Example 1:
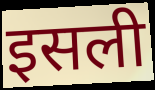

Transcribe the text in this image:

इसली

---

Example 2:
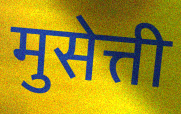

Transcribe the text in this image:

मुसेत्ती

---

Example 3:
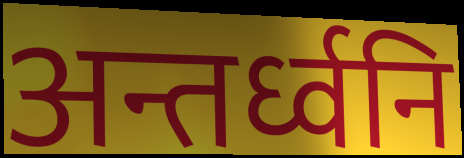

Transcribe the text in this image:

अन्तर्ध्वनि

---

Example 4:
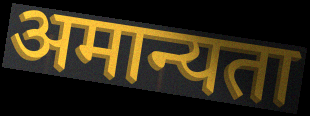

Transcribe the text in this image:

अमान्यता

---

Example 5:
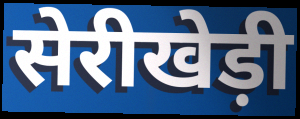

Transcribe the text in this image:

सेरीखेड़ी